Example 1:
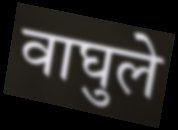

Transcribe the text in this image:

वाघुले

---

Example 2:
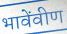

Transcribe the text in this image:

भावेंवीण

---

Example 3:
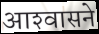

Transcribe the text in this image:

आश्वासने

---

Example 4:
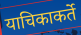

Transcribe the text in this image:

याचिकाकर्ते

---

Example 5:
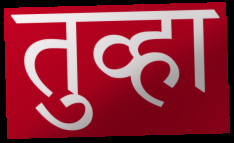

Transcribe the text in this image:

तुव्हा